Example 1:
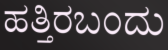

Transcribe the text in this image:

ಹತ್ತಿರಬಂದು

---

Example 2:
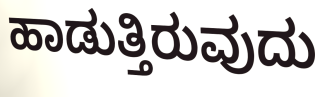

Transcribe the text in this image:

ಹಾಡುತ್ತಿರುವುದು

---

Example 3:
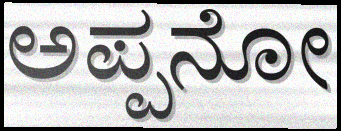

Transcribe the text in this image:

ಅಪ್ಪನೋ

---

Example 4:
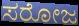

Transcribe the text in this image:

ಸರೋಜ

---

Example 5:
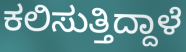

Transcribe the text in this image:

ಕಲಿಸುತ್ತಿದ್ದಾಳೆ